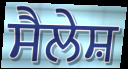
ਸੈਲੇਸ਼